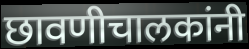
छावणीचालकांनी